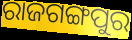
ରାଜଗଙ୍ଗପୁର